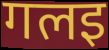
गलइ